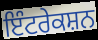
ਇੰਟਰੇਕਸ਼ਨ